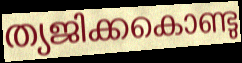
ത്യജിക്കകൊണ്ടു